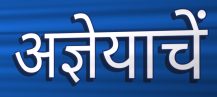
अज्ञेयाचें